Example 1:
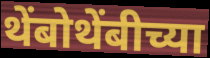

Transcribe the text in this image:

थेंबोथेंबीच्या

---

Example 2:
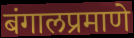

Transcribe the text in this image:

बंगालप्रमाणे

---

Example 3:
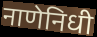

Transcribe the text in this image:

नाणेनिधी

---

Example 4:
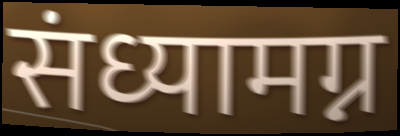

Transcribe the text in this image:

संध्यामग्न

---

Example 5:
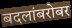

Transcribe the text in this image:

बदलांबरोबर